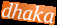
dhaka